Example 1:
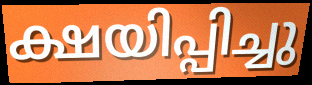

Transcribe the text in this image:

ക്ഷയിപ്പിച്ചു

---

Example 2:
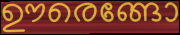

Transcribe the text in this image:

ഊരെങ്ങോ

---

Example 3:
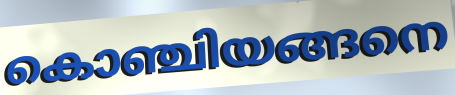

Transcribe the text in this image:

കൊഞ്ചിയങ്ങനെ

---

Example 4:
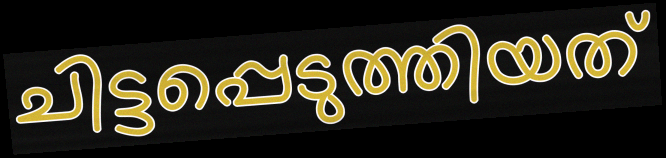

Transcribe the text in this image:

ചിട്ടപ്പെടുത്തിയത്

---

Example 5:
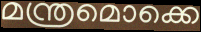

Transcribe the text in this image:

മന്ത്രമൊക്കെ